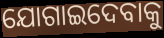
ଯୋଗାଇଦେବାକୁ